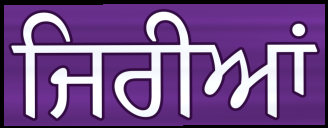
ਜਿਰੀਆਂ